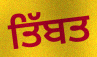
ਤਿੱਬਤ